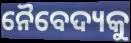
ନୈବେଦ୍ୟକୁ